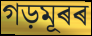
গড়মূৰৰ